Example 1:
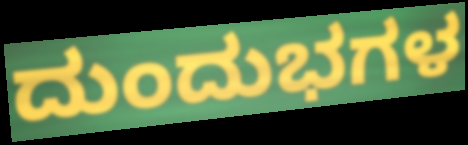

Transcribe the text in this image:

ದುಂದುಭಗಳ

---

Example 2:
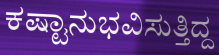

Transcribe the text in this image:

ಕಷ್ಟಾನುಭವಿಸುತ್ತಿದ್ದ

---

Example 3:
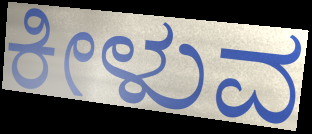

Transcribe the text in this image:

ಕೀಳುವ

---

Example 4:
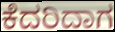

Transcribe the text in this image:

ಕೆದರಿದಾಗ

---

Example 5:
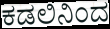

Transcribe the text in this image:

ಕಡಲಿನಿಂದ